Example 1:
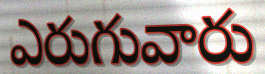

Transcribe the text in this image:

ఎరుగువారు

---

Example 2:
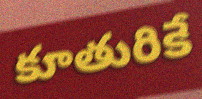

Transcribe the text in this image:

కూతురికే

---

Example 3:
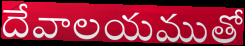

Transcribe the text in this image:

దేవాలయముతో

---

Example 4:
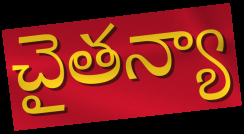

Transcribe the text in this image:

చైతన్యా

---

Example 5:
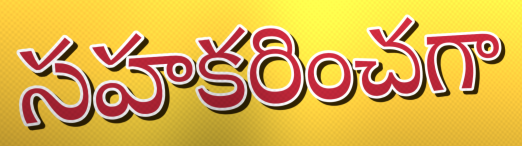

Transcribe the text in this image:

సహకరించగా